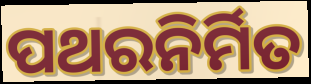
ପଥରନିର୍ମିତ